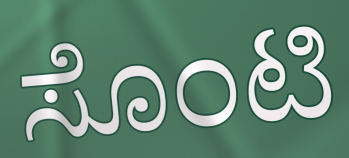
ಸೊಂಟಿ